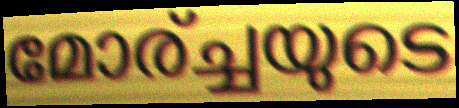
മോര്ച്ചയുടെ